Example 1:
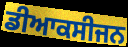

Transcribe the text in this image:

ਡੀਆਕਸੀਜਨ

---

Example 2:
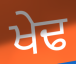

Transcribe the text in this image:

ਖੇਢ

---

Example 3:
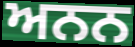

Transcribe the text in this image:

ਅਨਨ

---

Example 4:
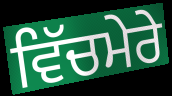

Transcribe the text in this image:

ਵਿੱਚਮੇਰੇ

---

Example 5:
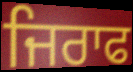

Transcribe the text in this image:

ਜਿਰਾਫ